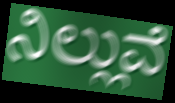
ನಿಲ್ಲುವೆ